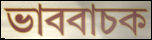
ভাববাচক